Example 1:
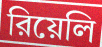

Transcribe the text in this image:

রিয়েলি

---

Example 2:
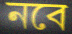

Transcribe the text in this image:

নবে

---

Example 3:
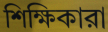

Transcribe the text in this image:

শিক্ষিকারা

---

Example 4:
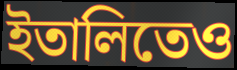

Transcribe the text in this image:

ইতালিতেও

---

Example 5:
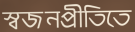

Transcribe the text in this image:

স্বজনপ্রীতিতে